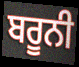
ਬਰੂਨੀ